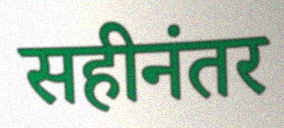
सहीनंतर